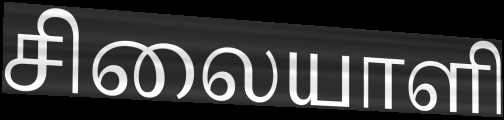
சிலையாளி